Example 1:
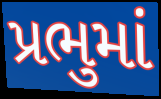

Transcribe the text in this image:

પ્રભુમાં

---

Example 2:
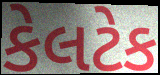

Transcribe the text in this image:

કેલટેક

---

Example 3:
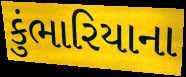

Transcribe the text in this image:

કુંભારિયાના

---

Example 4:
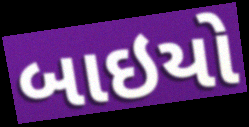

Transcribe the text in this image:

બાઇયો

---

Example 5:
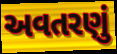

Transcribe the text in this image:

અવતરણું